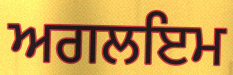
ਅਗਲਇਮ